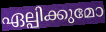
ഏല്പിക്കുമോ